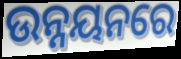
ଉନ୍ନୟନରେ